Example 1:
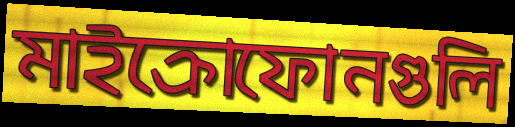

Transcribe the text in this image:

মাইক্রোফোনগুলি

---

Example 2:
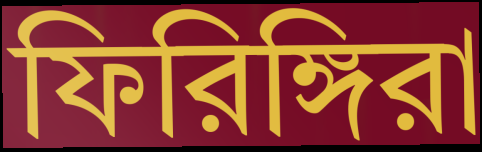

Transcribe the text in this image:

ফিরিঙ্গিরা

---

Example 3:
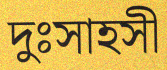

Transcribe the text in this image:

দুঃসাহসী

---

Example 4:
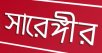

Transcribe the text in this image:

সারেঙ্গীর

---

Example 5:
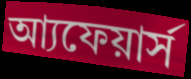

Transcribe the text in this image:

আ্যফেয়ার্স